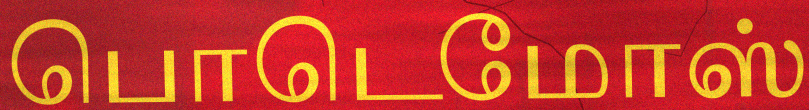
பொடெமோஸ்